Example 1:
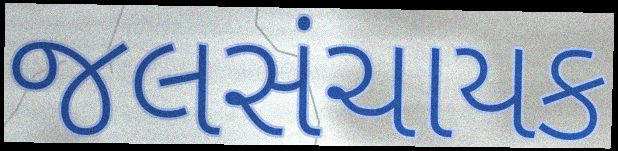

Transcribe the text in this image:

જલસંચાયક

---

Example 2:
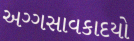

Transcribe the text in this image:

અગ્ગસાવકાદયો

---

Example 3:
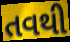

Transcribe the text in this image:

તવથી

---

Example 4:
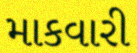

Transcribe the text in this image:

માકવારી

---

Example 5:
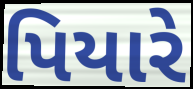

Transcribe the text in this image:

પિયારે